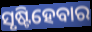
ସୃଷ୍ଟିହେବାର